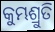
କୁମ୍ଭଶ୍ରୁତି